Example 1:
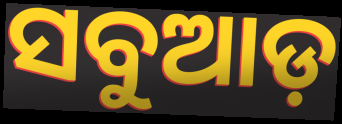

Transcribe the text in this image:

ସବୁଆଡ଼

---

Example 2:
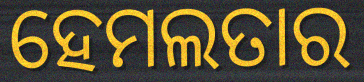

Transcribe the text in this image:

ହେମଲତାର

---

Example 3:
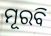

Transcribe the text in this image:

ମୂରବି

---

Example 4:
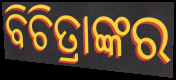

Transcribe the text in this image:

ବିଚିତ୍ରାଙ୍କର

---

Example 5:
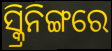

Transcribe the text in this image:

ସ୍କ୍ରିନିଙ୍ଗରେ